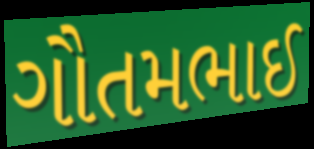
ગૌતમભાઈ